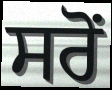
ਸਰੋਂ